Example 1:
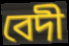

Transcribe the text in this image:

বেদী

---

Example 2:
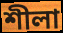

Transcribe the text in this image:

শীলা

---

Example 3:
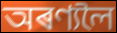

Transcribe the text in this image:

অৰণ্যলৈ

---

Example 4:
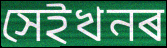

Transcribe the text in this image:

সেইখনৰ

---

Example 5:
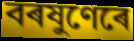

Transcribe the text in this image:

বৰষুণেৰে